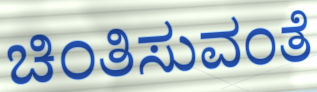
ಚಿಂತಿಸುವಂತೆ